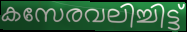
കസേരവലിച്ചിട്ട്